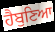
ਹੈਬੁਣਿਆ